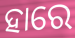
ହାରେ